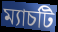
ম্যাচটি